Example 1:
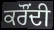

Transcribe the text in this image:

ਕਰੌਂਦੀ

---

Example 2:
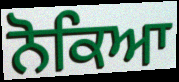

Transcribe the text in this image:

ਨੋਕਿਆ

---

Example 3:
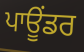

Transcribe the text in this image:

ਪਾਊਂਡਰ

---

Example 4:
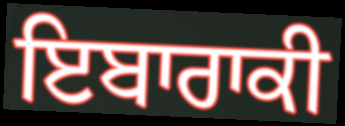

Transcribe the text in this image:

ਇਬਾਰਾਕੀ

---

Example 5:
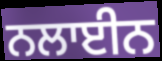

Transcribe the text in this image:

ਨਲਾਈਨ